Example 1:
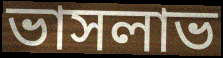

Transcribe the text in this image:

ভাসলাভ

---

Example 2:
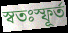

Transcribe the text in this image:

স্বতঃস্ফূর্ত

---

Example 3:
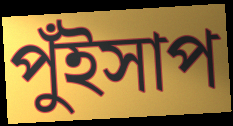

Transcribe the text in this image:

পুঁইসাপ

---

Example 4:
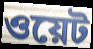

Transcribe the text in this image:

ওয়েট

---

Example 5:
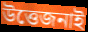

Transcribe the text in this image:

উত্তেজনাই